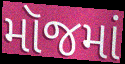
મૉજમાં